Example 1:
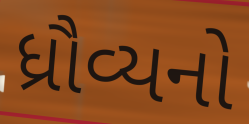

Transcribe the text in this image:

ધ્રૌવ્યનો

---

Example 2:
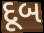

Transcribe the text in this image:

દૂબ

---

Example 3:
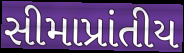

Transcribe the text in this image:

સીમાપ્રાંતીય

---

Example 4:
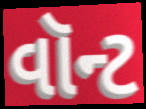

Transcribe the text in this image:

વૉન્ટ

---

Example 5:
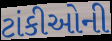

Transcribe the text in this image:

ટાંકીઓની